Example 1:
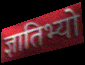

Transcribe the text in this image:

ज्ञातिभ्यो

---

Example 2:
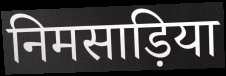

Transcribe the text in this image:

निमसाड़िया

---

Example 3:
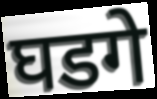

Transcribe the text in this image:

घडगे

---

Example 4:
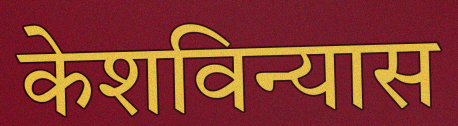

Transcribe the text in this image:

केशविन्यास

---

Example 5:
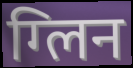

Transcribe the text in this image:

ग्लिन